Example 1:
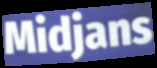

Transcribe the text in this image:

Midjans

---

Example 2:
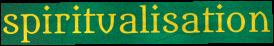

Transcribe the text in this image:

spiritualisation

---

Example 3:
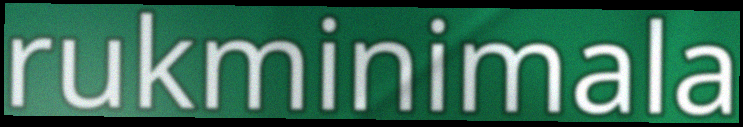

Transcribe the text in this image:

rukminimala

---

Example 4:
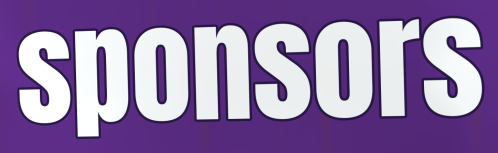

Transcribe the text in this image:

sponsors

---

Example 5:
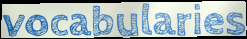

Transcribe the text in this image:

vocabularies